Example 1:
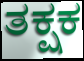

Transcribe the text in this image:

ತಕ್ಷಕ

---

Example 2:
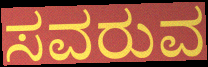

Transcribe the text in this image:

ಸವರುವ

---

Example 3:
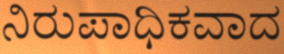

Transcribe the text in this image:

ನಿರುಪಾಧಿಕವಾದ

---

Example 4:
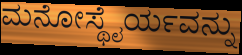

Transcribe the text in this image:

ಮನೋಸ್ಥೈರ್ಯವನ್ನು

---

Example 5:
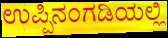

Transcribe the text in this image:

ಉಪ್ಪಿನಂಗಡಿಯಲ್ಲಿ